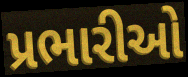
પ્રભારીઓ